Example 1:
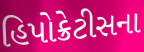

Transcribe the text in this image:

હિપોક્રેટીસના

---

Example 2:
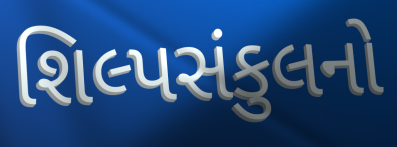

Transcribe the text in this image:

શિલ્પસંકુલનો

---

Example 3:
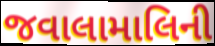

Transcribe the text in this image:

જવાલામાલિની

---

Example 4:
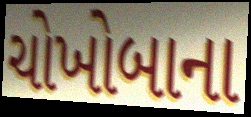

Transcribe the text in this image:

ચોખોબાના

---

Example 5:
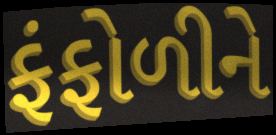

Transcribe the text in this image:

ફંફોળીને